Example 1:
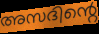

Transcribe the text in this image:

അസദിന്റെ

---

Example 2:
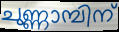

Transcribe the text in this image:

ചുണ്ണാമ്പിന്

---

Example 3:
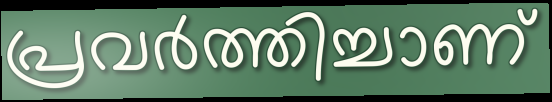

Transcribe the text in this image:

പ്രവർത്തിച്ചാണ്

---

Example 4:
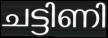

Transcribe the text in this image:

ചട്ടിണി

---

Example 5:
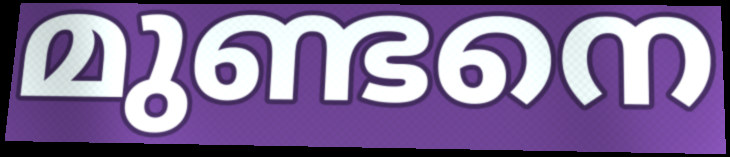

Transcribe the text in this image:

മുണ്ടനെ